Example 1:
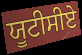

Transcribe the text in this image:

ਯੂਟੀਸੀਏ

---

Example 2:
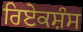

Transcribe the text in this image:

ਰਿਏਕਸ਼ੰਸ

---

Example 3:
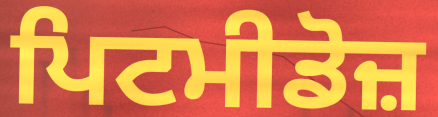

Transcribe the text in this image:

ਪਿਟਮੀਡੋਜ਼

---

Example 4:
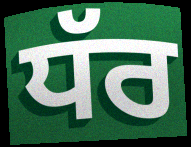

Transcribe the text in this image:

ਧੱਰ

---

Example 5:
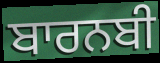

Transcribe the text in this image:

ਬਾਰਨਬੀ